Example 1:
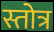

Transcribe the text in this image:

स्तोत्र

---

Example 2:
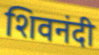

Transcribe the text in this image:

शिवनंदी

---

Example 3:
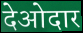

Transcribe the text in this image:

देओदार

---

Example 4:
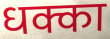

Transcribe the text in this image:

धक्का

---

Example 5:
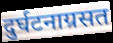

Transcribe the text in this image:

दुर्घटनाग्रसत